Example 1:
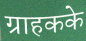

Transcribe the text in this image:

ग्राहकके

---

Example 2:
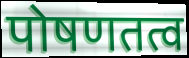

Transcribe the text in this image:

पोषणतत्व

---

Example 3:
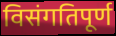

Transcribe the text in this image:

विसंगतिपूर्ण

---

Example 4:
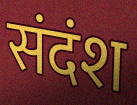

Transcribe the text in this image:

संदंश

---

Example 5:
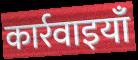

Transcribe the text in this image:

कार्रवाइयाँ